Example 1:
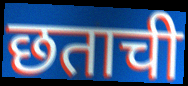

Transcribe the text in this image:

छताची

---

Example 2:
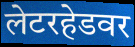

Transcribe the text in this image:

लेटरहेडवर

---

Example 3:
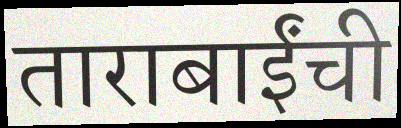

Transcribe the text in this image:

ताराबाईंची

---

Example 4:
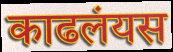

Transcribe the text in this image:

काढलंयस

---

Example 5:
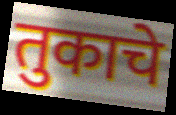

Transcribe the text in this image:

तुकाचे